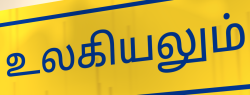
உலகியலும்